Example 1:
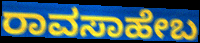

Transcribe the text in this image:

ರಾವಸಾಹೇಬ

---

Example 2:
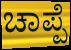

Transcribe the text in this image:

ಚಾಪ್ಪೆ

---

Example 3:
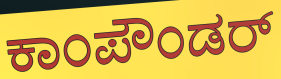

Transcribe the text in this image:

ಕಾಂಪೌಂಡರ್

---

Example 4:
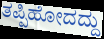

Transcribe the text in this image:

ತಪ್ಪಿಹೋದದ್ದು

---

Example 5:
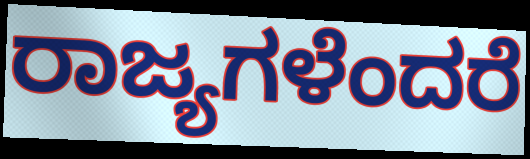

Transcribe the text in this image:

ರಾಜ್ಯಗಳೆಂದರೆ